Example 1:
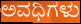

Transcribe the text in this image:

ಅವಧಿಗಳು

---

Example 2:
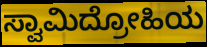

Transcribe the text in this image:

ಸ್ವಾಮಿದ್ರೋಹಿಯ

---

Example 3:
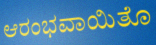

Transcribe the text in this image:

ಆರಂಭವಾಯಿತೊ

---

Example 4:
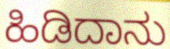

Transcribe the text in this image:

ಹಿಡಿದಾನು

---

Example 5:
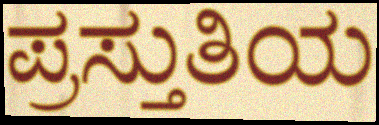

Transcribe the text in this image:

ಪ್ರಸ್ತುತಿಯ